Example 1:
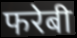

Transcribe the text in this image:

फरेबी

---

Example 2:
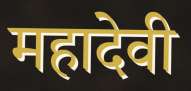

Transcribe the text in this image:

महादेवी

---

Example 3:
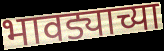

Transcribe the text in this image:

भावड्याच्या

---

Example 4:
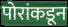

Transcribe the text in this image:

पोरांकडून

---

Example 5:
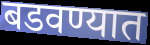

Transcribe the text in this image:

बडवण्यात